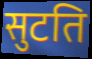
सुटति